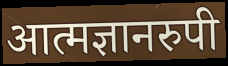
आत्मज्ञानरुपी